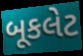
બૂકલેટ